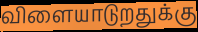
விளையாடுறதுக்கு